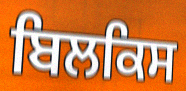
ਬਿਲਕਿਸ